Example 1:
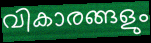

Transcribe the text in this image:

വികാരങ്ങളും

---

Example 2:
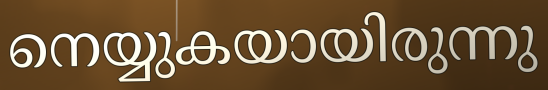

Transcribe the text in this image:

നെയ്യുകയായിരുന്നു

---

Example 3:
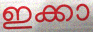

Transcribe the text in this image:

ഇക്കാ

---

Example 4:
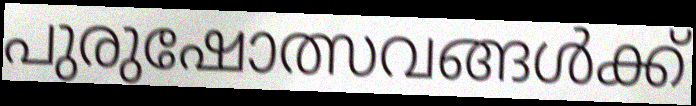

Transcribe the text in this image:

പുരുഷോത്സവങ്ങൾക്ക്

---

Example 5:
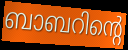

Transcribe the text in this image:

ബാബറിന്റെ